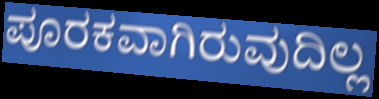
ಪೂರಕವಾಗಿರುವುದಿಲ್ಲ